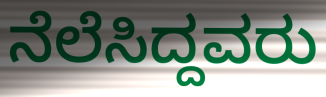
ನೆಲೆಸಿದ್ದವರು